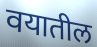
वयातील